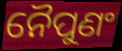
ନୈପୁଣଂ